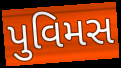
પુવિમસ